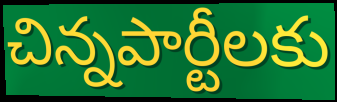
చిన్నపార్టీలకు